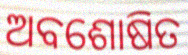
ଅବଶୋଷିତ